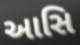
આસિ